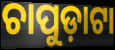
ଚାପୁଡ଼ାଟା